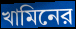
খামিনের